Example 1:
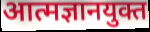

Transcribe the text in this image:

आत्मज्ञानयुक्त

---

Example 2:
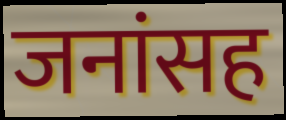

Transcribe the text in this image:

जनांसह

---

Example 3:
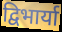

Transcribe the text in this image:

द्विभार्या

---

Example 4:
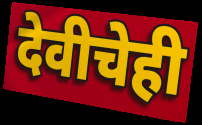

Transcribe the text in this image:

देवीचेही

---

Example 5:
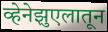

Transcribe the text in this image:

व्हेनेझुएलातून